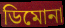
ডিমোনা